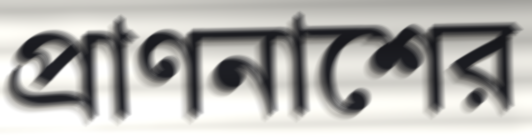
প্রাণনাশের